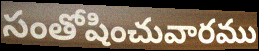
సంతోషించువారము